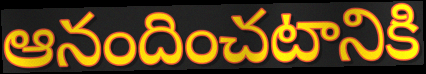
ఆనందించటానికి